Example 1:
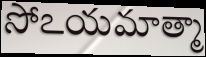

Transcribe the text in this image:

సోఽయమాత్మా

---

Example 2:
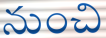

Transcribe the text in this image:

నుంచి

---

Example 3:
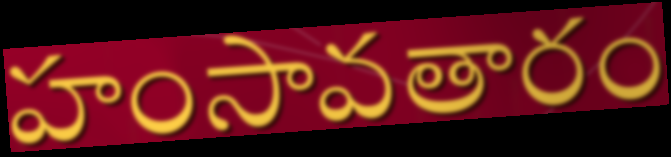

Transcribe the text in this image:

హంసావతారం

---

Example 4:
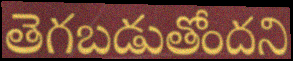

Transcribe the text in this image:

తెగబడుతోందని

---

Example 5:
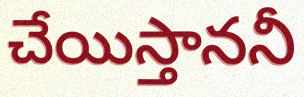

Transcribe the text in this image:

చేయిస్తాననీ